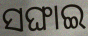
ସଙ୍ଘାଇ